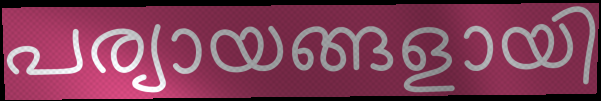
പര്യായങ്ങളായി